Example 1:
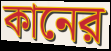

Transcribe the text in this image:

কানের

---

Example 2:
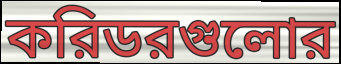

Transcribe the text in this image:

করিডরগুলোর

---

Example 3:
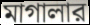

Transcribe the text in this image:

মাগালার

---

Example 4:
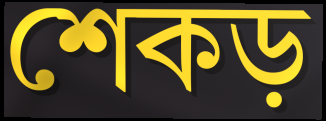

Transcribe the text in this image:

শেকড়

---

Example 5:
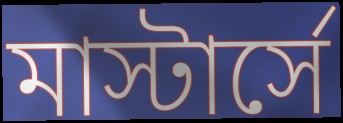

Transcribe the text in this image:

মাস্টার্সে